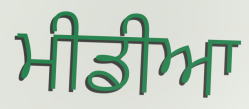
ਮੀਡੀਆ